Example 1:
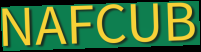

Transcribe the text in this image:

NAFCUB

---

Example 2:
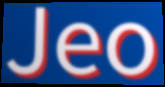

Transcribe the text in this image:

Jeo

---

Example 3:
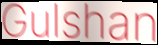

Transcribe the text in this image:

Gulshan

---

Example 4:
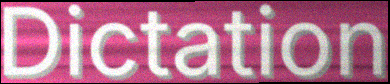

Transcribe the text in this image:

Dictation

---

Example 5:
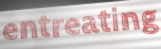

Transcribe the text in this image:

entreating